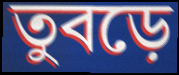
তুবড়ে